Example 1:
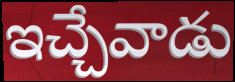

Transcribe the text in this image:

ఇచ్చేవాడు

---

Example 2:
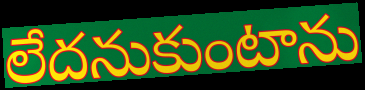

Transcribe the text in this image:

లేదనుకుంటాను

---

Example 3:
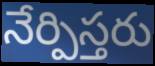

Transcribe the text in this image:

నేర్పిస్తరు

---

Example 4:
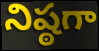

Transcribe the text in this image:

నిష్ఠగా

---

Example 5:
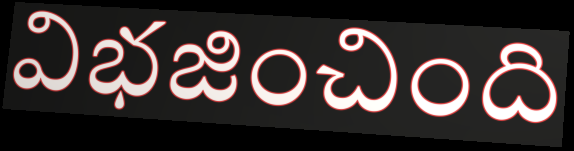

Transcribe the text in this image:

విభజించింది